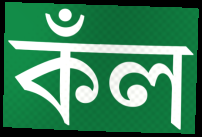
কঁল